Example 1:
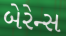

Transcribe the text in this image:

બેરેન્સ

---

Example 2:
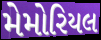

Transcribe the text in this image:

મેમોરિયલ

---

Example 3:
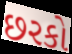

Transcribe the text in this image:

છરકો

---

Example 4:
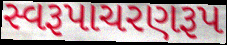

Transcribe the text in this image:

સ્વરૂપાચરણરૂપ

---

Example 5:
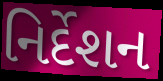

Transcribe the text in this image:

નિર્દેશન